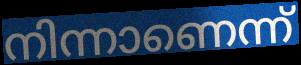
നിന്നാണെന്ന്